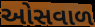
ઓસવાળ